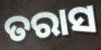
ତରାସ